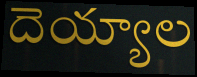
దెయ్యాల